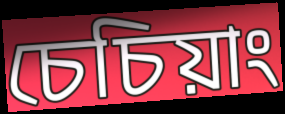
চেচিয়াং